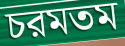
চরমতম